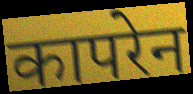
कापरेन